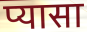
प्यासा